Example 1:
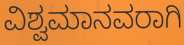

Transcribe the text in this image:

ವಿಶ್ವಮಾನವರಾಗಿ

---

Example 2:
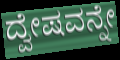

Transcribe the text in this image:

ದ್ವೇಷವನ್ನೇ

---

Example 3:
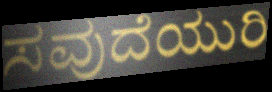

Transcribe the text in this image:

ಸವುದೆಯುರಿ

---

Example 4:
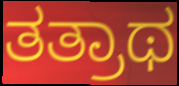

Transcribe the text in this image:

ತತ್ರಾಥ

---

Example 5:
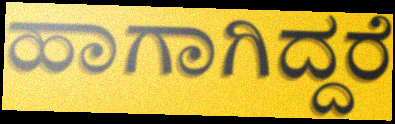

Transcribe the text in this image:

ಹಾಗಾಗಿದ್ದರೆ